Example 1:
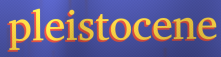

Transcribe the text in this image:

pleistocene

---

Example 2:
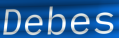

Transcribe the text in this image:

Debes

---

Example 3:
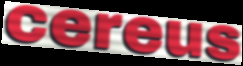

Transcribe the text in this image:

cereus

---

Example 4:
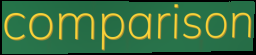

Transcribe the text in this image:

comparison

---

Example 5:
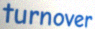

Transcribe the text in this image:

turnover